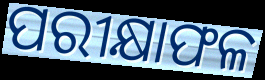
ପରୀକ୍ଷାଫଳ